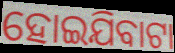
ହୋଇଯିବାଟା